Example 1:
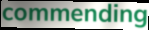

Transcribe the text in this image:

commending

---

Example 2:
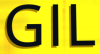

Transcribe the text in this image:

GIL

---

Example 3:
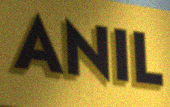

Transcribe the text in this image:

ANIL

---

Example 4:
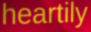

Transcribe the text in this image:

heartily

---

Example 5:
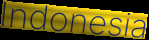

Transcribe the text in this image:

Indonesia